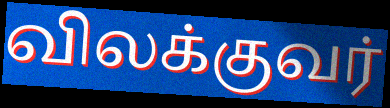
விலக்குவர்